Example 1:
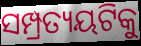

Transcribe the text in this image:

ସମ୍ପ୍ରତ୍ୟୟଟିକୁ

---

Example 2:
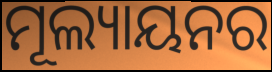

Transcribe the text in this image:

ମୂଲ୍ୟାୟନର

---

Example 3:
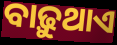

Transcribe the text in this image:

ବାଢ଼ୁଥାଏ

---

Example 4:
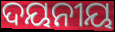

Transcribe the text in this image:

ଦୟନୀୟ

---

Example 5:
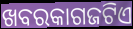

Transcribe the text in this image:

ଖବରକାଗଜଟିଏ